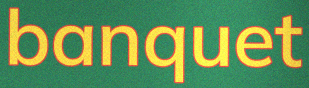
banquet